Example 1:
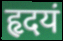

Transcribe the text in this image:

हृदयं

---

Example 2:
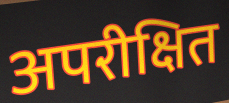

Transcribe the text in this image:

अपरीक्षित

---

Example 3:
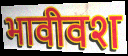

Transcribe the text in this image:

भावीवश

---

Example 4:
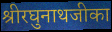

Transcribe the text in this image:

श्रीरघुनाथजीका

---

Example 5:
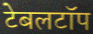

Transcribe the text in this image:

टेबलटॉप